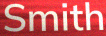
Smith